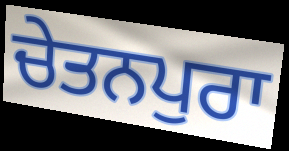
ਚੇਤਨਪੁਰਾ